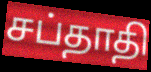
சப்தாதி